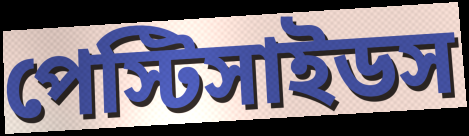
পেস্টিসাইডস